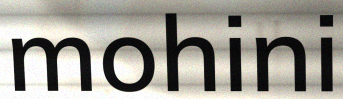
mohini